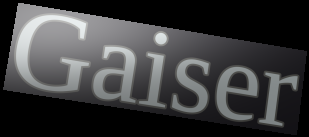
Gaiser